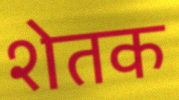
शेतक